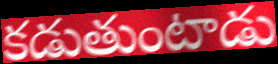
కడుతుంటాడు